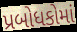
પ્રબોધકોમાં